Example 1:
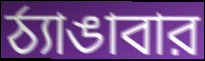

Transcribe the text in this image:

ঠ্যাঙাবার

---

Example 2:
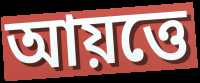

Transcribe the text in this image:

আয়ত্তে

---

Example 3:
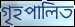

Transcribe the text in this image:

গৃহপালিত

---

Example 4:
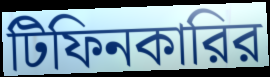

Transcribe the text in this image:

টিফিনকারির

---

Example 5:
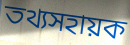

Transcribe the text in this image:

তথ্যসহায়ক